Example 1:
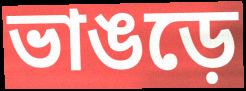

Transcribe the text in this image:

ভাঙড়ে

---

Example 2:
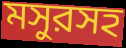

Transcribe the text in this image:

মসুরসহ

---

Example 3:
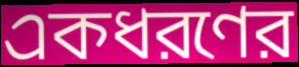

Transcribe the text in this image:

একধরণের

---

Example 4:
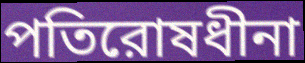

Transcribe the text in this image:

পতিরোষধীনা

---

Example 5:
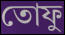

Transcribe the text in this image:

তোফু